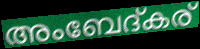
അംബേദ്കര്